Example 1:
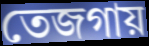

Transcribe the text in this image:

তেজগায়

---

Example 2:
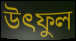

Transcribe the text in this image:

উৎফুল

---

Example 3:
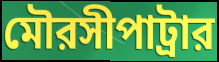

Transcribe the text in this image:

মৌরসীপাট্রার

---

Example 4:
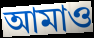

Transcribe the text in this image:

আমাও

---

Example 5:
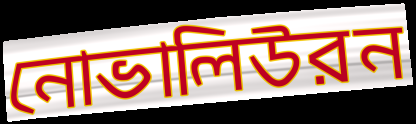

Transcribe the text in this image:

নোভালিউরন